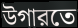
উগারতে